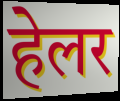
हेलर